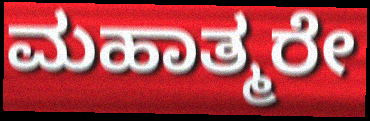
ಮಹಾತ್ಮರೇ